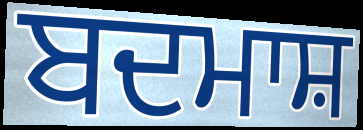
ਬਦਮਾਸ਼